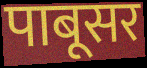
पाबूसर